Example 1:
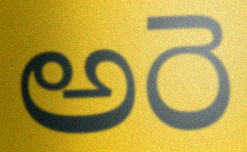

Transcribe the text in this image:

అరె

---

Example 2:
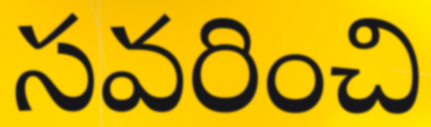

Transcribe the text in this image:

సవరించి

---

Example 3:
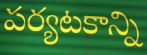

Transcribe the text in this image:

పర్యటకాన్ని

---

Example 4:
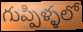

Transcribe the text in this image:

గుప్పిళ్ళలో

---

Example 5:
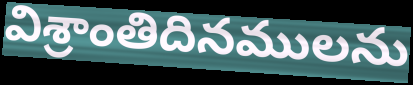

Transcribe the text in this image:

విశ్రాంతిదినములను